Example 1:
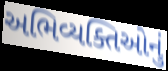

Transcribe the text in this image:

અભિવ્યક્તિઓનું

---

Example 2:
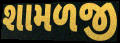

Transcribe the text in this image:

શામળજી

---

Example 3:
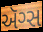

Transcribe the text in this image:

ઍગ્સ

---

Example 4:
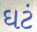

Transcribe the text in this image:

ઘટં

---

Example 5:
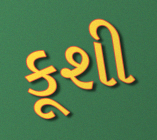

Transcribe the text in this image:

કૂશી